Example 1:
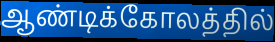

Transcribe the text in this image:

ஆண்டிக்கோலத்தில்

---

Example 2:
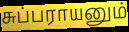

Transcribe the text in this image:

சுப்பராயனும்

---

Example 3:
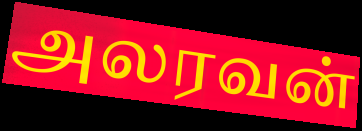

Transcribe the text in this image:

அலரவன்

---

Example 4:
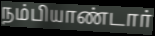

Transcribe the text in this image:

நம்பியாண்டார்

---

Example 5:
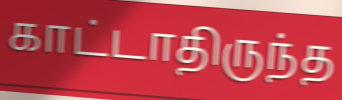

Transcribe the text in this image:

காட்டாதிருந்த